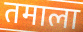
तमाला